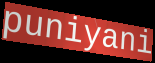
puniyani